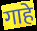
गाहे